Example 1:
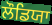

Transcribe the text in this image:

ਲੌਡਿਯਾ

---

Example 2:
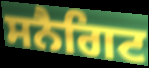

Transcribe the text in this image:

ਸਨੈਗਿਟ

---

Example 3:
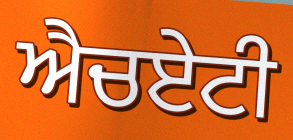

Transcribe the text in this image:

ਐਚਏਟੀ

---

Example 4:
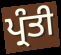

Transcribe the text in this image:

ਪ੍ਰੰਤੀ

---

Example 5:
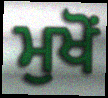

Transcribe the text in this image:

ਮੁਖੋਂ